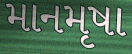
માનમૃષા